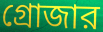
গ্রোজার